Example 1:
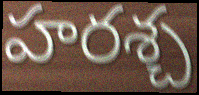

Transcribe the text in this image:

హరశ్చ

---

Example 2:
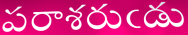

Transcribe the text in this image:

పరాశరుఁడు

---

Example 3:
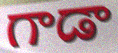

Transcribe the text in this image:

గాడా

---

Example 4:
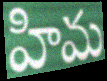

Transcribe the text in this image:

హిమ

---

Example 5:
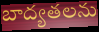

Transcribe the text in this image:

బాద్యతలను